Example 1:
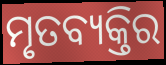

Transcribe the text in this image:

ମୃତବ୍ୟକ୍ତିର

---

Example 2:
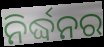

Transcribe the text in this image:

ନିର୍ଦ୍ଧନର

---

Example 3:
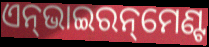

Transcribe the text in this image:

ଏନ୍‌ଭାଇରନ୍‌ମେଣ୍ଟ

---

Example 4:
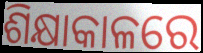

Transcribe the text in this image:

ଶିକ୍ଷାକାଳରେ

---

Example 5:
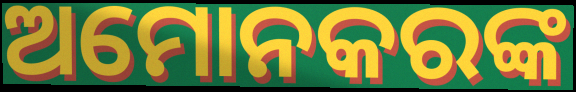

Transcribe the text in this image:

ଅମୋନକରଙ୍କ